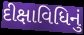
દીક્ષાવિધિનું